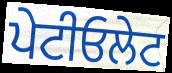
ਪੇਟੀਓਲੇਟ